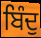
ਬਿੰਦੁ